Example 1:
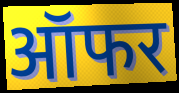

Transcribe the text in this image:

ऑफर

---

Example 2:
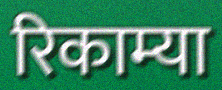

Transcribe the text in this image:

रिकाम्या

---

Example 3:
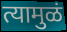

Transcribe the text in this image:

त्यामुळं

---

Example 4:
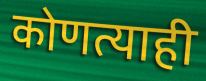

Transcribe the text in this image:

कोणत्याही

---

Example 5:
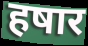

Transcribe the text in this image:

हषार